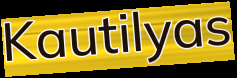
Kautilyas